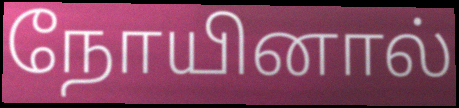
நோயினால்